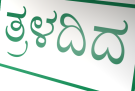
ತ್ರಳದಿದ